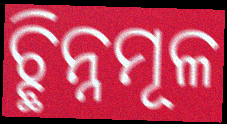
ଚ୍ଛିନ୍ନମୂଳ